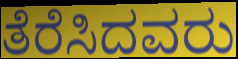
ತೆರೆಸಿದವರು